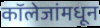
कॉलेजांमधून